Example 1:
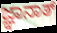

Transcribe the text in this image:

ಜ್ಞಾನಾತ್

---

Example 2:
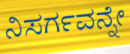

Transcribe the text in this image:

ನಿಸರ್ಗವನ್ನೇ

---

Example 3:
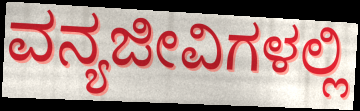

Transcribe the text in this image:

ವನ್ಯಜೀವಿಗಳಲ್ಲಿ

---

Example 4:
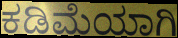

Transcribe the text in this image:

ಕಡಿಮೆಯಾಗಿ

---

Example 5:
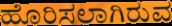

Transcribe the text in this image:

ಹೊರಿಸಲಾಗಿರುವ